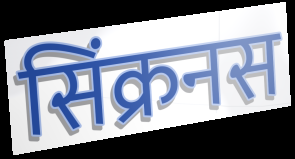
सिंक्रनस